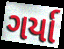
ગર્યા